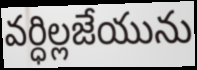
వర్ధిల్లజేయును